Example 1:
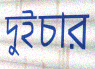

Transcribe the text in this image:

দুইচার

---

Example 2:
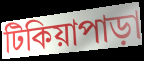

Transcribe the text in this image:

টিকিয়াপাড়া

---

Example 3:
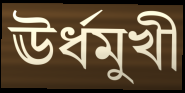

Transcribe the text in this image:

ঊর্ধমুখী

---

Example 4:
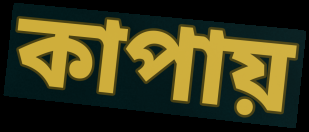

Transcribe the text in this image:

কাপায়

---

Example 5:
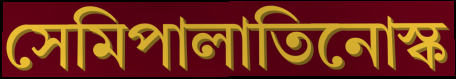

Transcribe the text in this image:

সেমিপালাতিনোস্ক